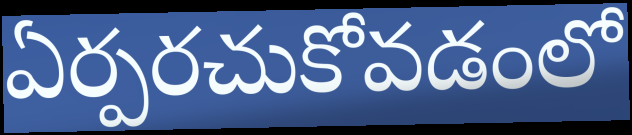
ఏర్పరచుకోవడంలో